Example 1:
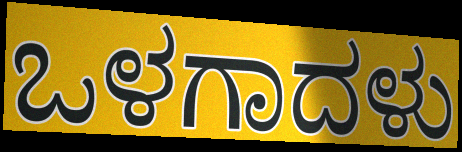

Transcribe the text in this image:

ಒಳಗಾದಳು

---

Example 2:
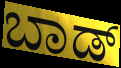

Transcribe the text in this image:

ಬಾಡ್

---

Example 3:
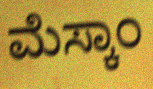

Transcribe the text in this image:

ಮೆಸ್ಕಾಂ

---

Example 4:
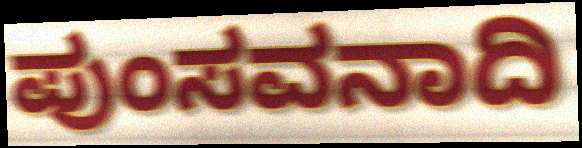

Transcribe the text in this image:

ಪುಂಸವನಾದಿ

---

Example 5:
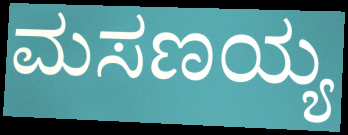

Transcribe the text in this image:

ಮಸಣಯ್ಯ